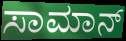
ಸಾಮಾನ್